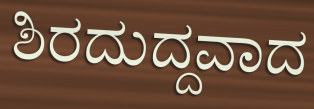
ಶಿರದುದ್ದವಾದ